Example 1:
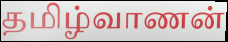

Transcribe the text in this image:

தமிழ்வாணன்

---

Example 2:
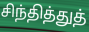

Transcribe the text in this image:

சிந்தித்துத்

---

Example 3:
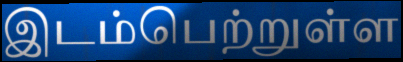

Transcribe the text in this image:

இடம்பெற்றுள்ள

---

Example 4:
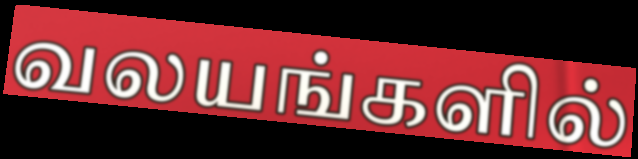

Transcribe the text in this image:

வலயங்களில்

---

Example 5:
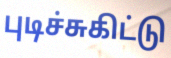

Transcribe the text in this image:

புடிச்சுகிட்டு